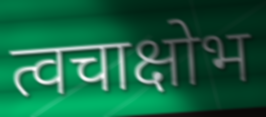
त्वचाक्षोभ